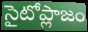
సైటోప్లాజం